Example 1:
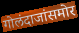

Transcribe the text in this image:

गोलंदाजांसमोर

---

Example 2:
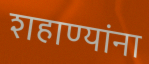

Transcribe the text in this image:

शहाण्यांना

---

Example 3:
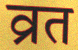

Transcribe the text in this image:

व्रत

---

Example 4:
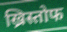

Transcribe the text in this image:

ख्रिस्तोफ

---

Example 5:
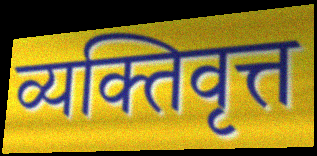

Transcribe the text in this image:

व्यक्तिवृत्त